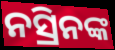
ନସ୍ରିନଙ୍କ